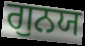
ਗੁਨਯ